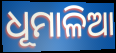
ଧୂମାଳିଆ